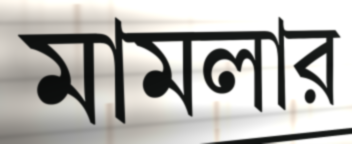
মামলার